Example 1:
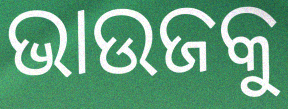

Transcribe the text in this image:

ଭାଉଜକୁ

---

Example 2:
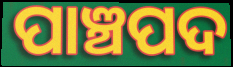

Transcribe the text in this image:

ପାଞ୍ଚପଦ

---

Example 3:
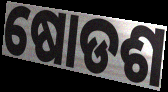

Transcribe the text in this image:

ଷୋଡଶ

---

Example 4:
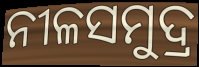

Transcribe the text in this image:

ନୀଳସମୁଦ୍ର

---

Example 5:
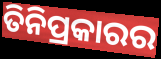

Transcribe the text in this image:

ତିନିପ୍ରକାରର